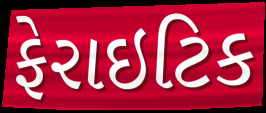
ફેરાઇટિક